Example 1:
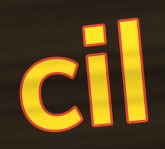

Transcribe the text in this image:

cil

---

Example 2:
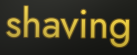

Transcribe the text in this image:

shaving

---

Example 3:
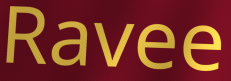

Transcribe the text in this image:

Ravee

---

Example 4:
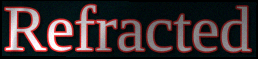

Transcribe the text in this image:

Refracted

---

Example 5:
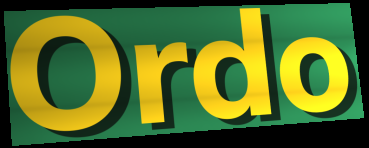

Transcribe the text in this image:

Ordo